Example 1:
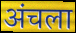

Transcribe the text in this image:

अंचला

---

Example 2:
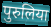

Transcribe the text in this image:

पुरुलिया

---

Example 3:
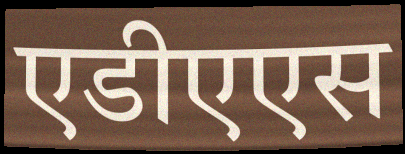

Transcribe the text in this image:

एडीएएस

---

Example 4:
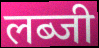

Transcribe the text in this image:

लब्जी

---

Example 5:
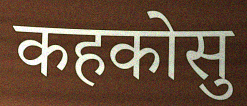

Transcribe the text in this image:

कहकोसु